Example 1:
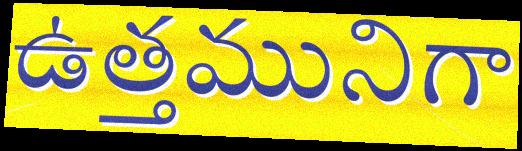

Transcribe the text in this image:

ఉత్తమునిగా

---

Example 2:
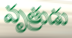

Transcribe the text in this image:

వృత్రుడు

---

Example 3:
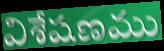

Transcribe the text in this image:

విశేషణము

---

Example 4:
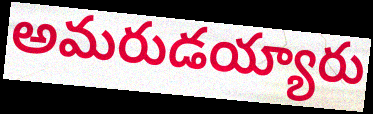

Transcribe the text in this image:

అమరుడయ్యారు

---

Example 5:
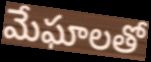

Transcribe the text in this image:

మేఘాలతో